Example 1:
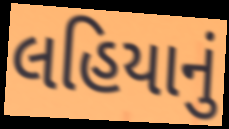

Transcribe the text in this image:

લહિયાનું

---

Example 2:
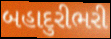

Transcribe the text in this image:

બહાદુરીભરી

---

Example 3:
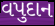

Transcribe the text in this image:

વપુદાન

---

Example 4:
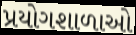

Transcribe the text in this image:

પ્રયોગશાળાઓ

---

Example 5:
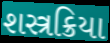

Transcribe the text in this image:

શસ્ત્રક્રિયા